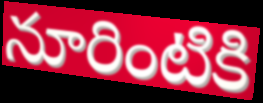
నూరింటికి